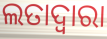
ଲତାଦ୍ୱାରା